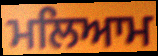
ਮਲਿਆਮ